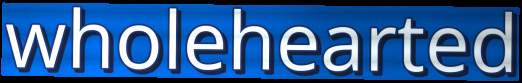
wholehearted